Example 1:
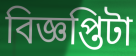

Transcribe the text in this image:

বিজ্ঞপ্তিটা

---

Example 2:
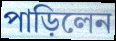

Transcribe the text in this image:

পাড়িলেন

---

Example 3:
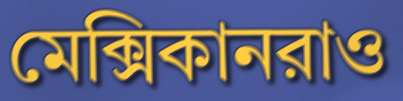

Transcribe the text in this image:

মেক্সিকানরাও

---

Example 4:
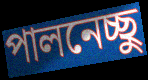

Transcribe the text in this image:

পালনেচ্ছু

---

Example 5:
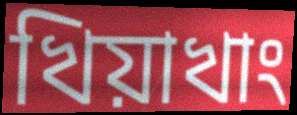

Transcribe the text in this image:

খিয়াখাং